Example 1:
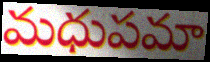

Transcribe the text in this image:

మధుపమా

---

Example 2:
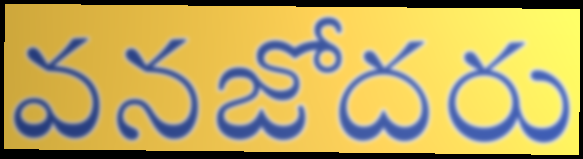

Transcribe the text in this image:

వనజోదరు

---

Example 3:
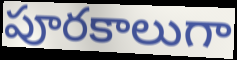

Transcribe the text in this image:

పూరకాలుగా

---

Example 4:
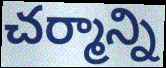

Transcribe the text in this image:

చర్మాన్ని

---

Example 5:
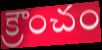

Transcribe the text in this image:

క్రౌంచం